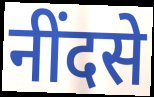
नींदसे